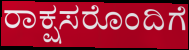
ರಾಕ್ಷಸರೊಂದಿಗೆ